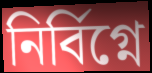
নির্বিগ্নে